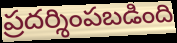
ప్రదర్శింపబడింది